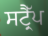
ਸਟ੍ਰੈੱਪ